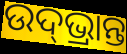
ଉଦ୍‌ଭ୍ରାନ୍ତ